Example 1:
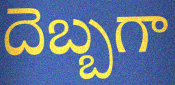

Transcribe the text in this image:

దెబ్బగా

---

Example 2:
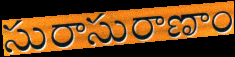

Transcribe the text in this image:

సురాసురాణాం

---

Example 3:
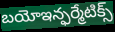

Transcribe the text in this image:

బయోఇన్ఫర్మేటిక్స్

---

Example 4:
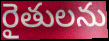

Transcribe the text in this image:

రైతులను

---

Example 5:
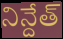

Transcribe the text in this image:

నిన్దేత్